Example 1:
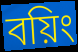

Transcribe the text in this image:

বয়িং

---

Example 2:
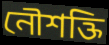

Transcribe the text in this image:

নৌশক্তি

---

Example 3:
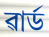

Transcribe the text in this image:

ৱাৰ্ড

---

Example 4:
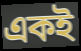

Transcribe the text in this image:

একই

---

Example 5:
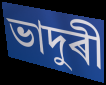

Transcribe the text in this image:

ভাদুৰী